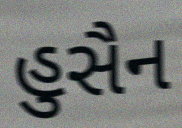
હુસૈન